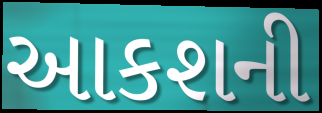
આકશની